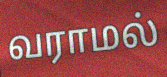
வராமல்